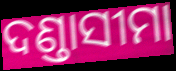
ଦଣ୍ଡାସୀମା